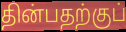
தின்பதற்குப்